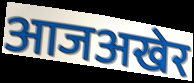
आजअखेर